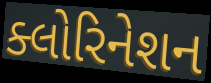
ક્લોરિનેશન